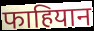
फाहियान